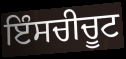
ਇੰਸਚੀਚੂਟ